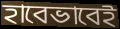
হাবেভাবেই